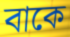
বাকে